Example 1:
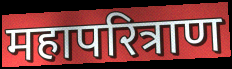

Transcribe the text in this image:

महापरित्राण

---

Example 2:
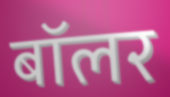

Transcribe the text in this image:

बॉलर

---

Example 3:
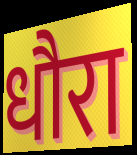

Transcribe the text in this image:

धौरा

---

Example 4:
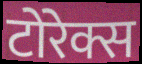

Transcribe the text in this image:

टोरेक्स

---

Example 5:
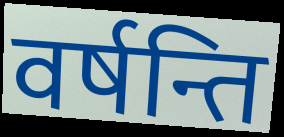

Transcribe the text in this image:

वर्षन्ति